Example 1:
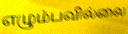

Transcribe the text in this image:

எழும்பவில்லை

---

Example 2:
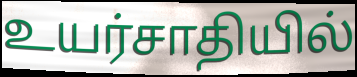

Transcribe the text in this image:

உயர்சாதியில்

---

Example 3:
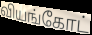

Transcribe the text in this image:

வியங்கோட்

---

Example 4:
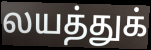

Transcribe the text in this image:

லயத்துக்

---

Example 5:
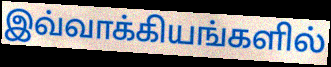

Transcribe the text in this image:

இவ்வாக்கியங்களில்